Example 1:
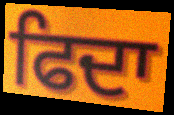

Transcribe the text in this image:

ਫਿਦਾ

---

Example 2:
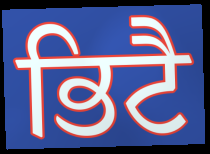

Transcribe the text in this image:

ਭਿਟੈ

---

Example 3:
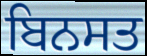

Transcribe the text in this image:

ਬਿਨਸਤ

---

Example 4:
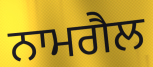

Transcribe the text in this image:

ਨਾਮਗੈਲ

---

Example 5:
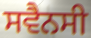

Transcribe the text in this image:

ਸਵੈਨਸੀ